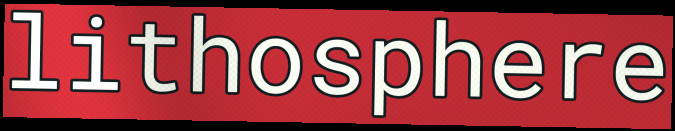
lithosphere